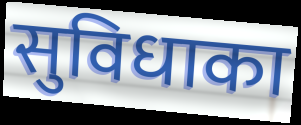
सुविधाका